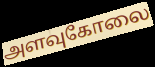
அளவுகோலை